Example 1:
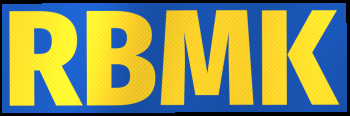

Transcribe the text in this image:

RBMK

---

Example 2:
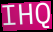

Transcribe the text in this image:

IHQ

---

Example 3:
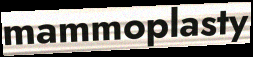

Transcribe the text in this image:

mammoplasty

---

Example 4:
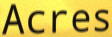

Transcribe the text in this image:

Acres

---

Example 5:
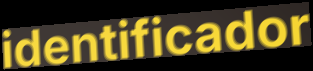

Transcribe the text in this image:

identificador